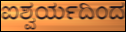
ಐಶ್ವರ್ಯದಿಂದ